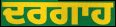
ਦਰਗਾਹ